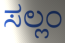
ಸಲ್ಲಂ